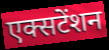
एक्सटेंशन